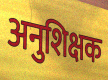
अनुशिक्षक